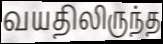
வயதிலிருந்த